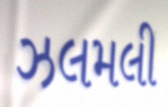
ઝલમલી